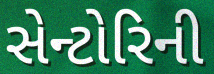
સેન્ટોરિની